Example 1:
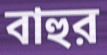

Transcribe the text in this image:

বাহুর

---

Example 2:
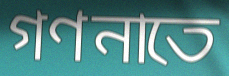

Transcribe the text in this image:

গণনাতে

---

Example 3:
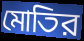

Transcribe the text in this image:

মোতির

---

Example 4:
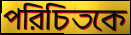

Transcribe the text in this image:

পরিচিতকে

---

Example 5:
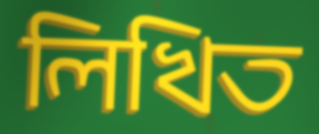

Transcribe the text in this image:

লিখিত